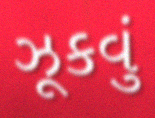
ઝૂકવું